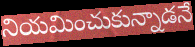
నియమించుకున్నాడనే